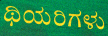
ಥಿಯರಿಗಳು